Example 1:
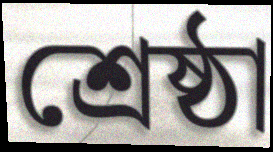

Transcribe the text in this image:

শ্রেষ্ঠা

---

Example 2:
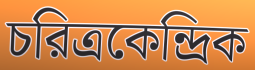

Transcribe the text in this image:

চরিত্রকেন্দ্রিক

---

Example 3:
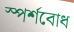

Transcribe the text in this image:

স্পর্শবোধ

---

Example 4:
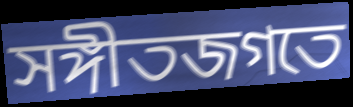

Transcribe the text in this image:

সঙ্গীতজগতে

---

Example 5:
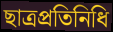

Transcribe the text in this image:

ছাত্রপ্রতিনিধি